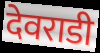
देवराडी